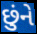
છુંને